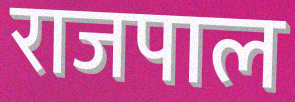
राजपाल